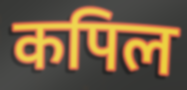
कपिल